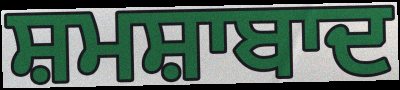
ਸ਼ਮਸ਼ਾਬਾਦ